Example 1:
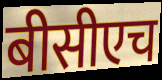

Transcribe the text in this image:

बीसीएच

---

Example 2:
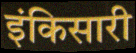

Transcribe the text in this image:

इंकिसारी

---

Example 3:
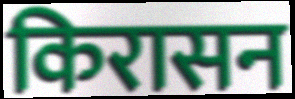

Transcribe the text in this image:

किरासन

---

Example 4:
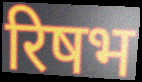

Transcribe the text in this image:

रिषभ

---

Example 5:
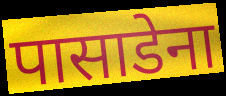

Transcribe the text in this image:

पासाडेना